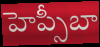
హెప్సీబా